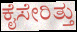
ಕೈಸೇರಿತ್ತು